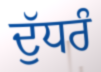
ਦੁੱਧਰੰ